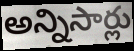
అన్నిసార్లు